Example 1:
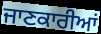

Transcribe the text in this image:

ਜਾਣਕਾਰੀਆਂ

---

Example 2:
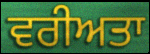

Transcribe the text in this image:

ਵਰੀਅਤਾ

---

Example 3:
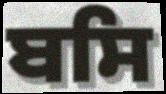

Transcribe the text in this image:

ਬਸਿ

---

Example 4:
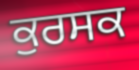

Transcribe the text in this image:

ਕੁਰਸਕ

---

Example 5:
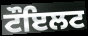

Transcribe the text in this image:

ਟੌਇਲਟ